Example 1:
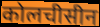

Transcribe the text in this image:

कोलचीसीन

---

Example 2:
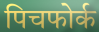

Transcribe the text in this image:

पिचफोर्क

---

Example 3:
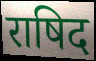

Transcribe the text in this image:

राषिद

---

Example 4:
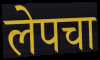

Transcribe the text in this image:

लेपचा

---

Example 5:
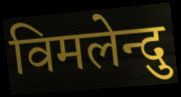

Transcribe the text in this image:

विमलेन्दु